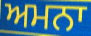
ਅਮਨਾ